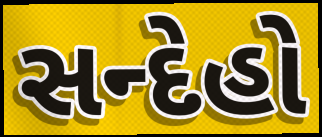
સન્દેહો